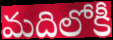
మదిలోకీ